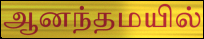
ஆனந்தமயில்